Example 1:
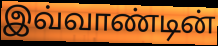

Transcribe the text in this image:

இவ்வாண்டின்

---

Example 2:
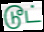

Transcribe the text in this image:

டூட்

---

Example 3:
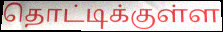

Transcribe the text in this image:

தொட்டிக்குள்ள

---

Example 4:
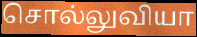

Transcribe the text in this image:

சொல்லுவியா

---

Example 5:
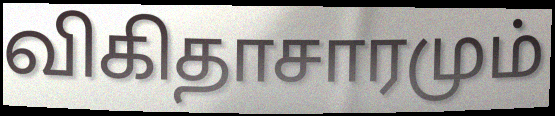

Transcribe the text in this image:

விகிதாசாரமும்